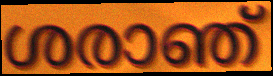
ശരാഞ്